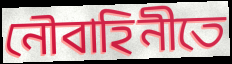
নৌবাহিনীতে